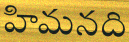
హిమనది